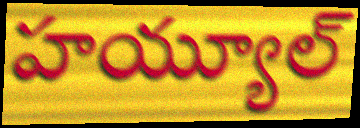
హయ్యూల్